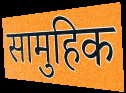
सामुहिक